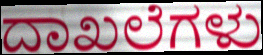
ದಾಖಲೆಗಳು